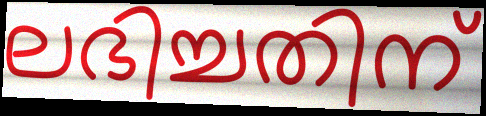
ലഭിച്ചതിന്